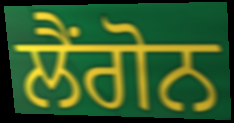
ਲੈਂਗੋਨ